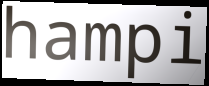
hampi